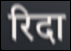
रिदा